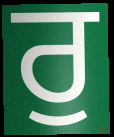
ਰੁ